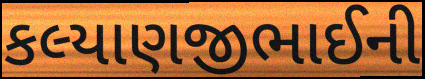
કલ્યાણજીભાઈની